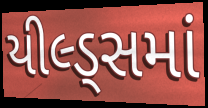
યીલ્ડ્સમાં